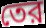
তের